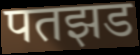
पतझड